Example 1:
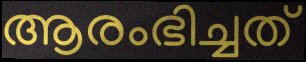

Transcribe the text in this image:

ആരംഭിച്ചത്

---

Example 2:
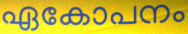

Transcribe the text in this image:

ഏകോപനം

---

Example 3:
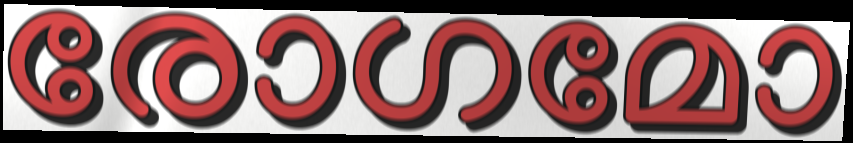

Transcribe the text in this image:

രോഗമോ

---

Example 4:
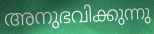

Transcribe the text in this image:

അനുഭവിക്കുന്നു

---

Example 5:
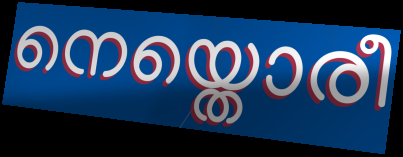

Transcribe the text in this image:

നെയ്തൊരീ